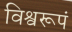
विश्वरूपं